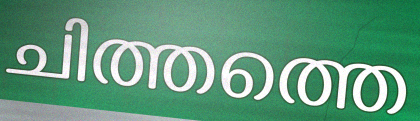
ചിത്തത്തെ